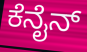
ಕೆನೈನ್